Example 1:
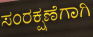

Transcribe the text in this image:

ಸಂರಕ್ಷಣೆಗಾಗಿ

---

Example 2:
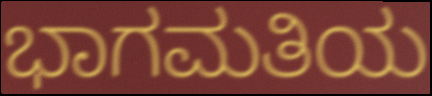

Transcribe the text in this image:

ಭಾಗಮತಿಯ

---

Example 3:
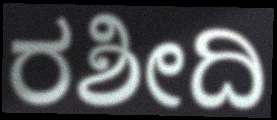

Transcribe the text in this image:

ರಶೀದಿ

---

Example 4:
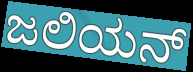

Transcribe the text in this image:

ಜಲಿಯನ್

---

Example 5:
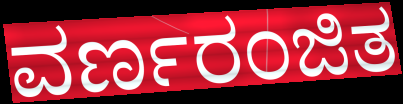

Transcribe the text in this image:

ವರ್ಣರಂಜಿತ